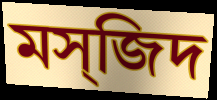
মস্জিদ